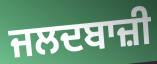
ਜਲਦਬਾਜ਼ੀ